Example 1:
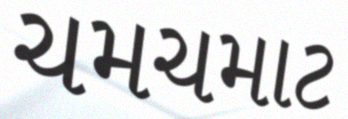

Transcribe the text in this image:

ચમચમાટ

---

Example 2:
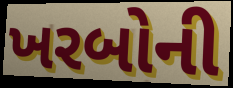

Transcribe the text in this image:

ખરબોની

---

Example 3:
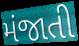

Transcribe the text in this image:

મંજાતી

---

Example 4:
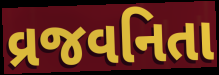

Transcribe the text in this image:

વ્રજવનિતા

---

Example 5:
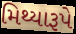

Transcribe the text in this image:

મિથ્યારૂપે